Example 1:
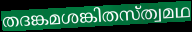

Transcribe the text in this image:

തദങ്കമശങ്കിതസ്ത്വമഥ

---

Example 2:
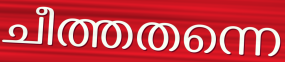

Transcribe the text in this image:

ചീത്തതന്നെ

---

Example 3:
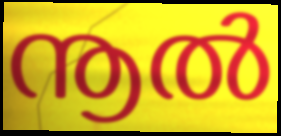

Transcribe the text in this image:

നൂൽ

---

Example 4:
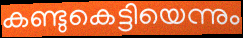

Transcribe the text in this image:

കണ്ടുകെട്ടിയെന്നും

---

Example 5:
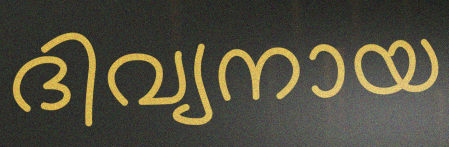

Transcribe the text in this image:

ദിവ്യനായ